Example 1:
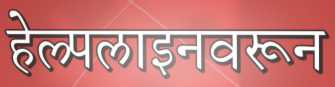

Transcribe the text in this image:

हेल्पलाइनवरून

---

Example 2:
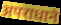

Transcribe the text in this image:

अपराधाने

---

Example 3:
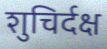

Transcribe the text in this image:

शुचिर्दक्ष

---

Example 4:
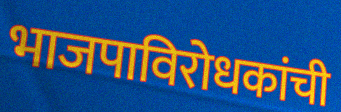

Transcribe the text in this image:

भाजपाविरोधकांची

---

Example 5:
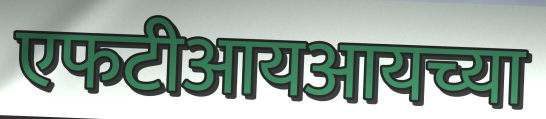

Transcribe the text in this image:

एफटीआयआयच्या